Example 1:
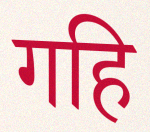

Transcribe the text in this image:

गहि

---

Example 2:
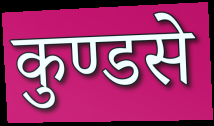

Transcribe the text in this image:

कुण्डसे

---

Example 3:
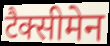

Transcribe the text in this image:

टैक्सीमेन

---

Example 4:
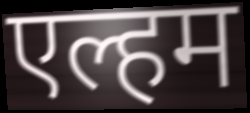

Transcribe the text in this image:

एल्हम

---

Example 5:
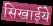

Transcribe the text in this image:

सिखाईये